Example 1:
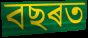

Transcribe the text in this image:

বছৰত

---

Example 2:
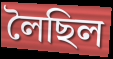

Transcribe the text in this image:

লৈছিল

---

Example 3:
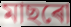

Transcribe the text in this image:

মাছৰো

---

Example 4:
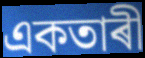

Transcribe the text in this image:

একতাৰী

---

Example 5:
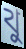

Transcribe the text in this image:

থু